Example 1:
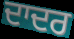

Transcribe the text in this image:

ਦਾਦਰ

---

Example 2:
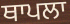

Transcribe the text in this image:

ਥਾਪਲਾ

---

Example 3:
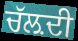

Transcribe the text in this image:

ਚੱਲ਼ਦੀ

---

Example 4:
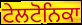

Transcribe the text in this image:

ਟੇਲਟੋਨਿਕਾ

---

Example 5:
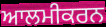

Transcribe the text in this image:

ਆਲਮੀਕਰਨ